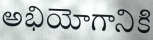
అభియోగానికి